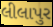
લીલાપુર